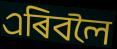
এৰিবলৈ